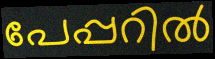
പേപ്പറിൽ